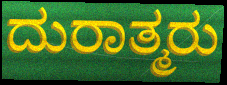
ದುರಾತ್ಮರು